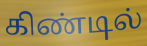
கிண்டில்